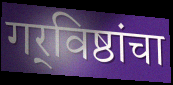
गर्विष्ठांचा